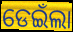
ଡେଇଁଲା